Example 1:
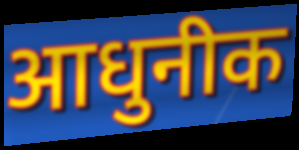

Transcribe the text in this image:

आधुनीक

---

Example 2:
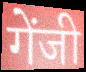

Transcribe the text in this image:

गेंजी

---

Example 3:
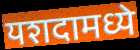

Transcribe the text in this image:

यशदामध्ये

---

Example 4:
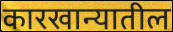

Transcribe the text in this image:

कारखान्यातील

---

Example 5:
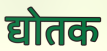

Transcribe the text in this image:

द्योतक